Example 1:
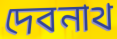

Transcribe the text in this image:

দেবনাথ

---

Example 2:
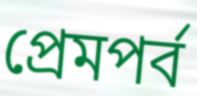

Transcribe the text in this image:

প্রেমপর্ব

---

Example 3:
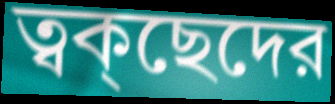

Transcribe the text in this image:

ত্বক্ছেদের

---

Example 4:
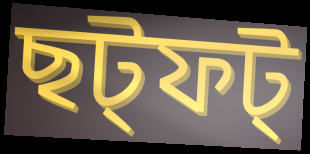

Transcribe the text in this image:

ছট্‌ফট্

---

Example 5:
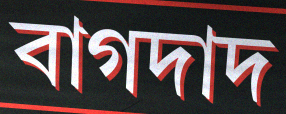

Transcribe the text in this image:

বাগদাদ